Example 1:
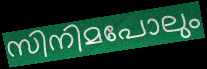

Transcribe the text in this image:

സിനിമപോലും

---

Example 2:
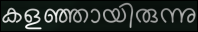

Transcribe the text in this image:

കളഞ്ഞായിരുന്നു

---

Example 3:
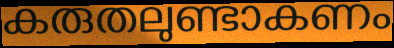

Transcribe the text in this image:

കരുതലുണ്ടാകണം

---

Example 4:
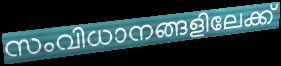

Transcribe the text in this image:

സംവിധാനങ്ങളിലേക്ക്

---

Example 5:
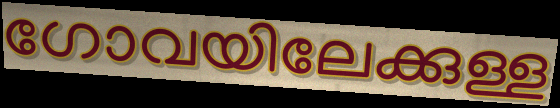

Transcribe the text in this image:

ഗോവയിലേക്കുള്ള